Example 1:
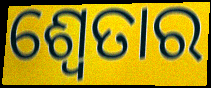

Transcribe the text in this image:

ଶ୍ୱେତାର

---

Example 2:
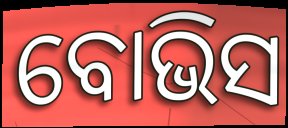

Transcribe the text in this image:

ବୋଭିସ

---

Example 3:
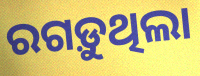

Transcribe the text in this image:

ରଗଡ଼ୁଥିଲା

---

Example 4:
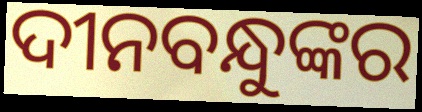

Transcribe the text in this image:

ଦୀନବନ୍ଧୁଙ୍କର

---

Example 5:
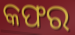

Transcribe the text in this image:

କଫର